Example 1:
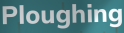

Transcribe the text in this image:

Ploughing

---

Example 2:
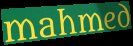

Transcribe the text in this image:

mahmed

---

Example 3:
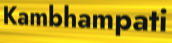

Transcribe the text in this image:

Kambhampati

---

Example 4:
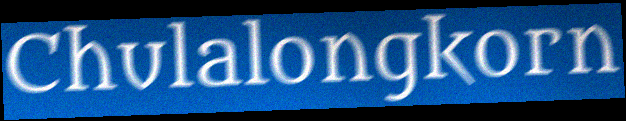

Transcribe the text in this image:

Chulalongkorn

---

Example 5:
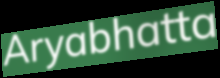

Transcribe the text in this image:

Aryabhatta